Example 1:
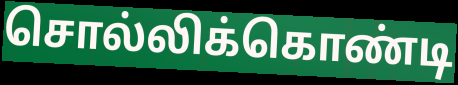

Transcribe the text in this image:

சொல்லிக்கொண்டி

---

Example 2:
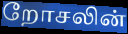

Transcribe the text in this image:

றோசலின்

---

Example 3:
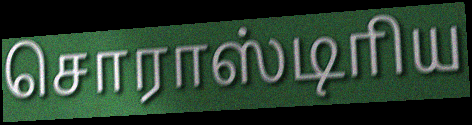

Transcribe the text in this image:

சொராஸ்டிரிய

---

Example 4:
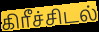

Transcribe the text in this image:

கிரீச்சிடல்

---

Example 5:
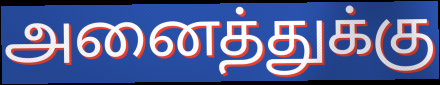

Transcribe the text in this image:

அனைத்துக்கு